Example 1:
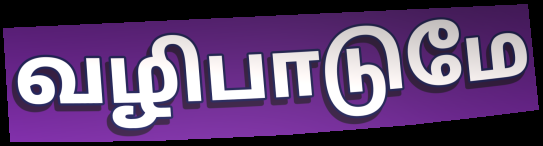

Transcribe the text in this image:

வழிபாடுமே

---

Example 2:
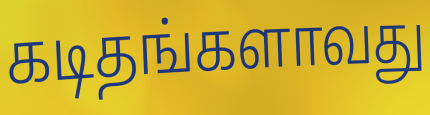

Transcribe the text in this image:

கடிதங்களாவது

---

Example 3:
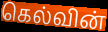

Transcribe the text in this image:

கெல்வின்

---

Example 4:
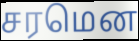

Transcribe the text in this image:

சரமென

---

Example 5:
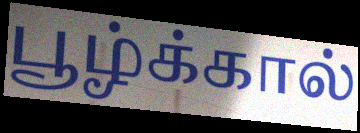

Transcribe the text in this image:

பூழ்க்கால்